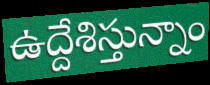
ఉద్దేశిస్తున్నాం